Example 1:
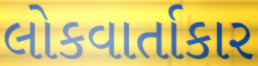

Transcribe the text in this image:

લોકવાર્તાકાર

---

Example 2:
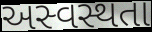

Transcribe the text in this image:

અસ્વસ્થતા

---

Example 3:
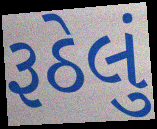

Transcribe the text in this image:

રૂઠેલું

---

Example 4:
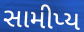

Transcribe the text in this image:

સામીપ્ય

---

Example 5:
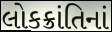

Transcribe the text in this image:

લોકક્રાંતિનાં